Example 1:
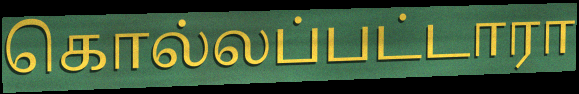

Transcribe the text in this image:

கொல்லப்பட்டாரா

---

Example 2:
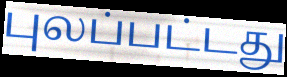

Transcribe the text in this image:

புலப்பட்டது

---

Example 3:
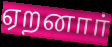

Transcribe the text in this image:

ஏறனார்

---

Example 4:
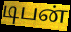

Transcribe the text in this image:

டிபன்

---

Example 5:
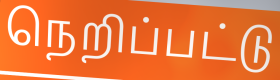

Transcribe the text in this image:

நெறிப்பட்டு